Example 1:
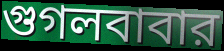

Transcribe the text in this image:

গুগলবাবার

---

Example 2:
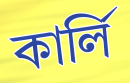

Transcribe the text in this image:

কার্লি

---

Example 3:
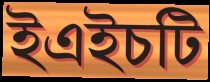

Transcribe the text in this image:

ইএইচটি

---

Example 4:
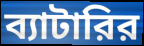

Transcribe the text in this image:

ব্যাটারির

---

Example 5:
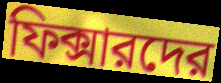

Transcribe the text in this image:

ফিক্সারদের